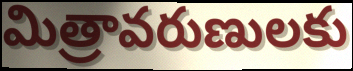
మిత్రావరుణులకు